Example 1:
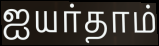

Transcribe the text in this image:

ஐயர்தாம்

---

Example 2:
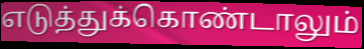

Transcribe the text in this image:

எடுத்துக்கொண்டாலும்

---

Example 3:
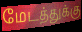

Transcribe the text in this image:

மேடத்துக்கு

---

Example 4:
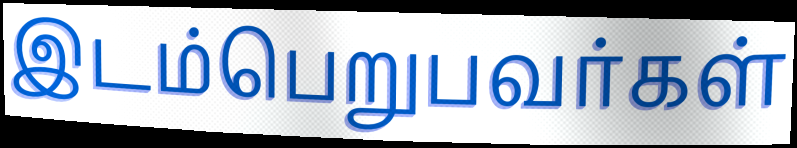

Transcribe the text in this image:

இடம்பெறுபவர்கள்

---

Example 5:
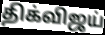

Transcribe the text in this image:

திக்விஜய்